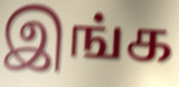
இங்க